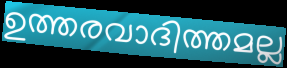
ഉത്തരവാദിത്തമല്ല